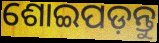
ଶୋଇପଡ଼ନ୍ତୁ